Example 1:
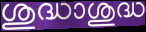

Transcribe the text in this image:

ശുദ്ധാശുദ്ധ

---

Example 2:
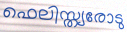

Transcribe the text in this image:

ഫെലിസ്ത്യരോടു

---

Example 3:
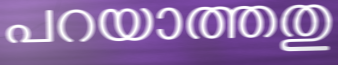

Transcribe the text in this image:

പറയാത്തതു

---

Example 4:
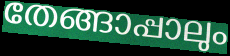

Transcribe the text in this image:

തേങ്ങാപ്പാലും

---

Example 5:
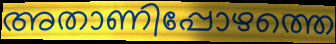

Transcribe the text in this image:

അതാണിപ്പോഴത്തെ